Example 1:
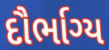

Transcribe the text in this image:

દૌર્ભાગ્ય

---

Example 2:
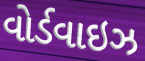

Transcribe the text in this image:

વોર્ડવાઇઝ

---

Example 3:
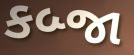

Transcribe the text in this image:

કબ્જા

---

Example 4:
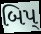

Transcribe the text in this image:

બિપ્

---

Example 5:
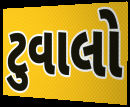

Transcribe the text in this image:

ટુવાલો